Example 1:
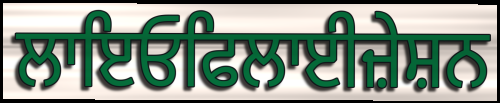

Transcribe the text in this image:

ਲਾਇਓਫਿਲਾਈਜ਼ੇਸ਼ਨ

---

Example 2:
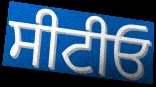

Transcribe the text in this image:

ਸੀਟੀਓ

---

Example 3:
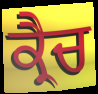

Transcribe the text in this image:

ਕ੍ਰੈਚ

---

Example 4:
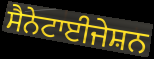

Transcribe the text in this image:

ਸੈਨੇਟਾਈਜੇਸ਼ਨ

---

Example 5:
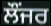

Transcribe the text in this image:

ਲੌਂਜਰ